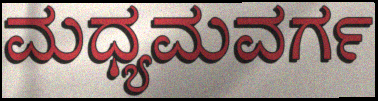
ಮಧ್ಯಮವರ್ಗ